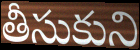
తీసుకుని